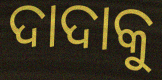
ଦାଦାକୁ